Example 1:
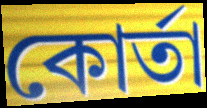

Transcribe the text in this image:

কোর্তা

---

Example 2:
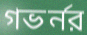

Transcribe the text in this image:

গভর্নর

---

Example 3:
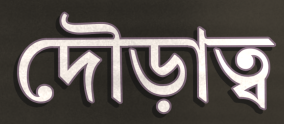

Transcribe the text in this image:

দৌড়াত্ব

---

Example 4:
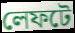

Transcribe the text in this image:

লেফটে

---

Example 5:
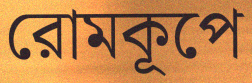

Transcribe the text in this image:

রোমকূপে